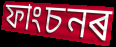
ফাংচনৰ